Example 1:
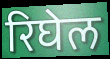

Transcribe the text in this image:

रिघेल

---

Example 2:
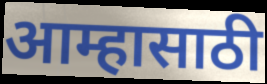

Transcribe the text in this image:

आम्हासाठी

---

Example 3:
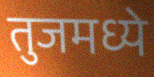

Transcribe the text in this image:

तुजमध्ये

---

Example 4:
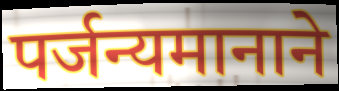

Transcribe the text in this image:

पर्जन्यमानाने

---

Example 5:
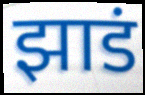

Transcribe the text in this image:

झाडं